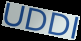
UDDI